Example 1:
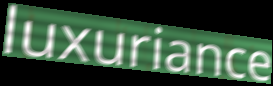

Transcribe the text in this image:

luxuriance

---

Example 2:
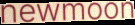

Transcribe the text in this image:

newmoon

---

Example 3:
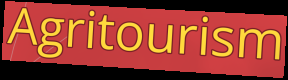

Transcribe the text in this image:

Agritourism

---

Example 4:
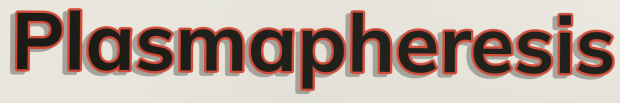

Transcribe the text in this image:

Plasmapheresis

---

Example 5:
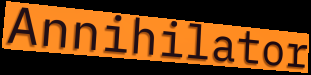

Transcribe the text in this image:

Annihilator